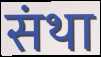
संथा